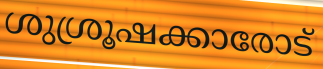
ശുശ്രൂഷക്കാരോട്